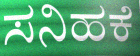
ಸನಿಹಕೆ